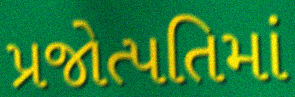
પ્રજોત્પતિમાં